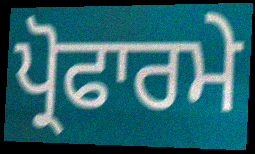
ਪ੍ਰੋਫਾਰਮੇ